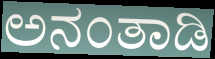
ಅನಂತಾಡಿ